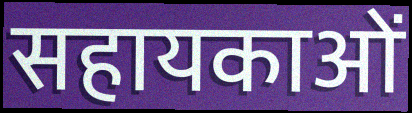
सहायकाओं